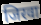
जिरवा